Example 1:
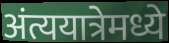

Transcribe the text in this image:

अंत्ययात्रेमध्ये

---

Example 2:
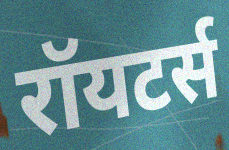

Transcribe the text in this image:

रॉयटर्स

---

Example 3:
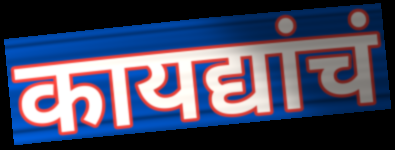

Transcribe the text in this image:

कायद्यांचं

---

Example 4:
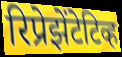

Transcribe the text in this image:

रिप्रेझेंटेटिव्ह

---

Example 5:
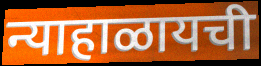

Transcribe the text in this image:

न्याहाळायची